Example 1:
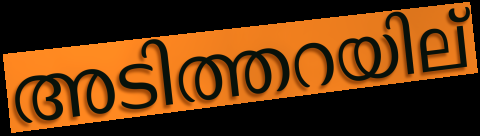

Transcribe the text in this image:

അടിത്തറയില്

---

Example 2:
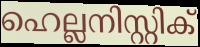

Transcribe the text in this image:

ഹെല്ലനിസ്റ്റിക്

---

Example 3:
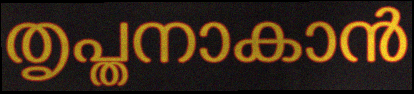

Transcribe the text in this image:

തൃപ്തനാകാൻ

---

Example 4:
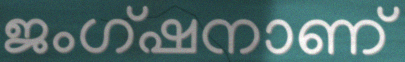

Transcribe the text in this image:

ജംഗ്ഷനാണ്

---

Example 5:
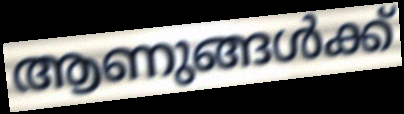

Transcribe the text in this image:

ആണുങ്ങൾക്ക്